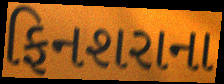
ફિનશરાના